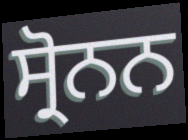
ਸ੍ਰੋਨਨ